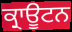
ਕ੍ਰਾਊਟਨ